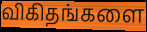
விகிதங்களை